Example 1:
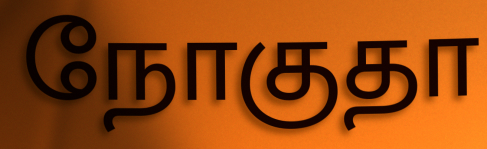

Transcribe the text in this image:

நோகுதா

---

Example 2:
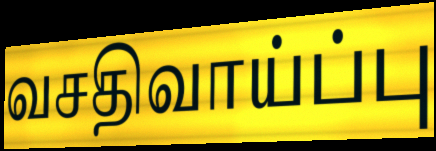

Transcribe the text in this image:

வசதிவாய்ப்பு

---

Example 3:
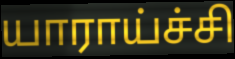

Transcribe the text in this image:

யாராய்ச்சி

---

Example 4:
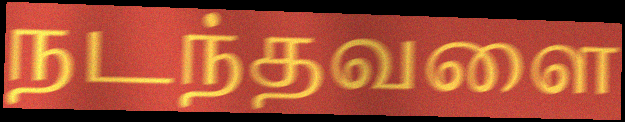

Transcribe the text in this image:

நடந்தவளை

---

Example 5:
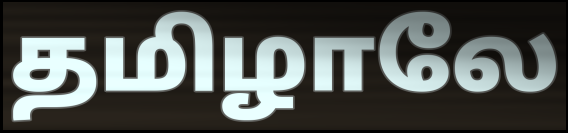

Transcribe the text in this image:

தமிழாலே